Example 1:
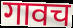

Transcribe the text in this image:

गावच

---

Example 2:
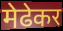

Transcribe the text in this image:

मेढेकर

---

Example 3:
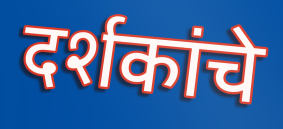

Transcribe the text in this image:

दर्शकांचे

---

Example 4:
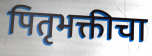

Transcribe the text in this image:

पितृभक्तीचा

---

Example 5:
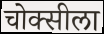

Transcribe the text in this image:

चोक्सीला